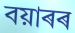
বয়াৰৰ